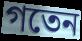
গতেন